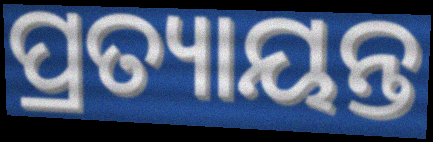
ପ୍ରତ୍ୟାୟନ୍ତ